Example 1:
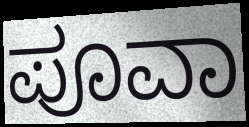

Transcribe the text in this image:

ಪೂವಾ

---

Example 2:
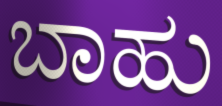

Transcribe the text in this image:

ಬಾಹು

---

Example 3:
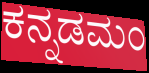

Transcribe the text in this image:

ಕನ್ನಡಮಂ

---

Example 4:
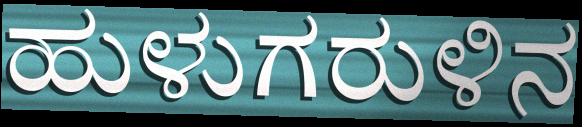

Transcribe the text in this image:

ಹುಳುಗರುಳಿನ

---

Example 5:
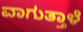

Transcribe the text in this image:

ವಾಗುತ್ತಾಳೆ